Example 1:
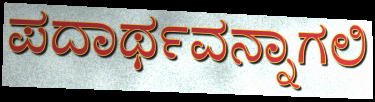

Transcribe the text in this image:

ಪದಾರ್ಥವನ್ನಾಗಲಿ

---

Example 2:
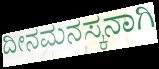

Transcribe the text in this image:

ದೀನಮನಸ್ಕನಾಗಿ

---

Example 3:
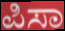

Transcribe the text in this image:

ಪಿಸಾ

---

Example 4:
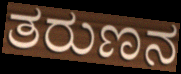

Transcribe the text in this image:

ತರುಣನ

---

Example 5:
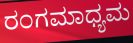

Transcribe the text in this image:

ರಂಗಮಾಧ್ಯಮ